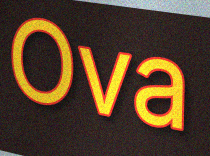
Ova